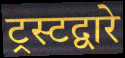
ट्रस्टद्वारे